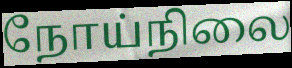
நோய்நிலை